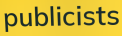
publicists